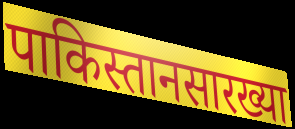
पाकिस्तानसारख्या